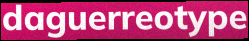
daguerreotype